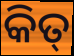
କିତ୍